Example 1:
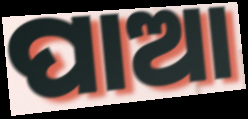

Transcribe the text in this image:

ପାଆ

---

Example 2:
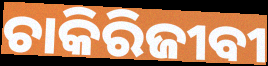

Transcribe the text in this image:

ଚାକିରିଜୀବୀ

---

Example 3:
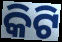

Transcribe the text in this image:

କିଟି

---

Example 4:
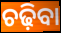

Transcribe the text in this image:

ଚଢ଼ିବା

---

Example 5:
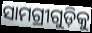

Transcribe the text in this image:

ସାମଗ୍ରୀଗୁଡ଼ିକୁ